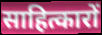
साहित्कारों